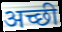
अच्छी